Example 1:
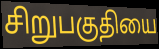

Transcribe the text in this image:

சிறுபகுதியை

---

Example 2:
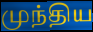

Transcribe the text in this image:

முந்திய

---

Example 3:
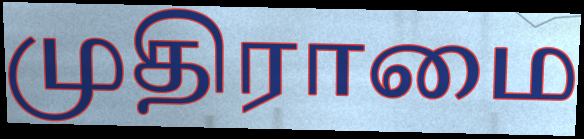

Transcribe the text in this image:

முதிராமை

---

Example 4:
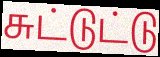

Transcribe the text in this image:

சுட்டுட்டு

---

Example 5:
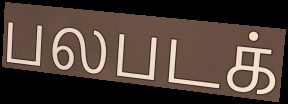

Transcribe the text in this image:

பலபடக்